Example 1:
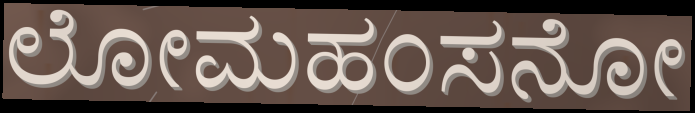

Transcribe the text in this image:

ಲೋಮಹಂಸನೋ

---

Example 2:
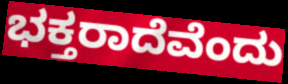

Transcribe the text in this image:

ಭಕ್ತರಾದೆವೆಂದು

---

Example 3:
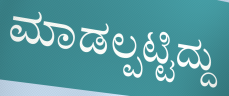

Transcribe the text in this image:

ಮಾಡಲ್ಪಟ್ಟಿದ್ದು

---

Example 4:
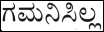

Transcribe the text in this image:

ಗಮನಿಸಿಲ್ಲ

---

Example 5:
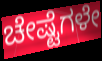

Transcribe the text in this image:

ಚೇಷ್ಟೆಗಳೇ